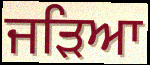
ਜੜਿਆ